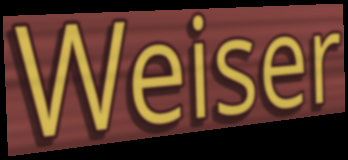
Weiser